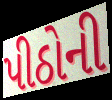
પીઠોની